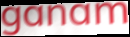
ganam